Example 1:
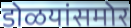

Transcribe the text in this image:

डोळयांसमोर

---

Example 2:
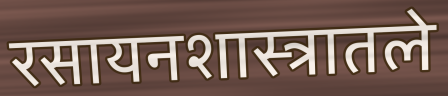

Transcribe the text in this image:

रसायनशास्त्रातले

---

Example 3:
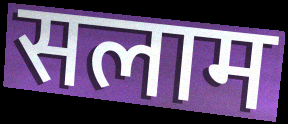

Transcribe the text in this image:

सलाम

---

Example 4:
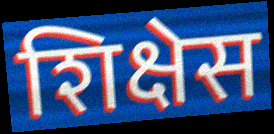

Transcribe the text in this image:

शिक्षेस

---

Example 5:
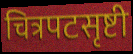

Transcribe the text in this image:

चित्रपटसृष्टी